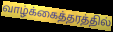
வாழ்க்கைத்தரத்தில்